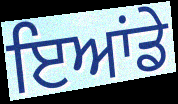
ਇਆਂਡੇ